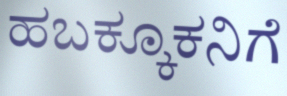
ಹಬಕ್ಕೂಕನಿಗೆ